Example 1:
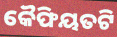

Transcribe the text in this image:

କୈଫିୟତଟି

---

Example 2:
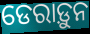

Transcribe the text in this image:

ଡେରାଡ଼ୁନ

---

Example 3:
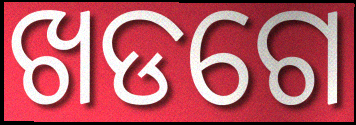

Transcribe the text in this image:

ଖଡଗେ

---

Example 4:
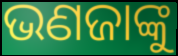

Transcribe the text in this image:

ଭଣଜାଙ୍କୁ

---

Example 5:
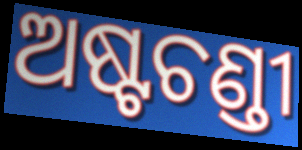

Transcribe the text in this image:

ଅଷ୍ଟଚଣ୍ଡୀ